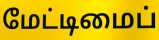
மேட்டிமைப்